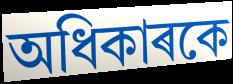
অধিকাৰকে